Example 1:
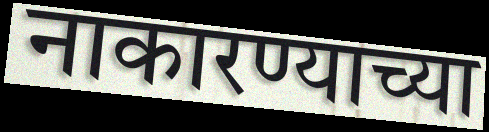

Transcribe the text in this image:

नाकारण्याच्या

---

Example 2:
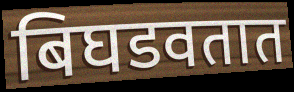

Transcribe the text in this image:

बिघडवतात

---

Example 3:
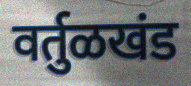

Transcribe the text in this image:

वर्तुळखंड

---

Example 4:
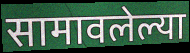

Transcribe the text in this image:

सामावलेल्या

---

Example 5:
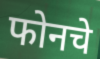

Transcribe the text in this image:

फोनचे